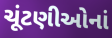
ચૂંટણીઓનાં